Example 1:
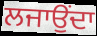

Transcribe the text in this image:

ਲਜਾਉਂਦਾ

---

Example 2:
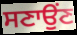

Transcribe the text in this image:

ਸਣਾਉਂਣ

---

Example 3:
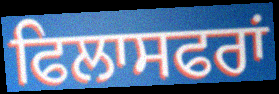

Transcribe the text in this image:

ਫਿਲਾਸਫਰਾਂ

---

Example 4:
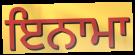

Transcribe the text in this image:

ਇਨਾਮਾ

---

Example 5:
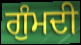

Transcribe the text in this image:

ਗੁੰਮਦੀ